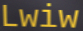
Lwiw